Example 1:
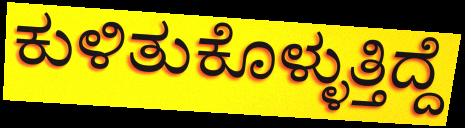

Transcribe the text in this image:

ಕುಳಿತುಕೊಳ್ಳುತ್ತಿದ್ದೆ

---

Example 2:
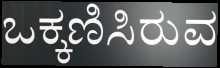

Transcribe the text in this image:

ಒಕ್ಕಣಿಸಿರುವ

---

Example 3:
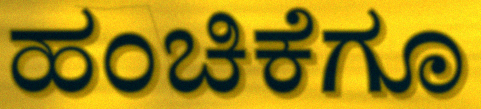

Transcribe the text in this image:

ಹಂಚಿಕೆಗೂ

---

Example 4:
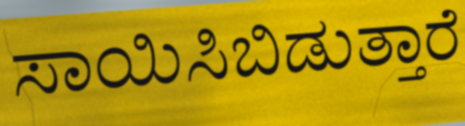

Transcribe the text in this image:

ಸಾಯಿಸಿಬಿಡುತ್ತಾರೆ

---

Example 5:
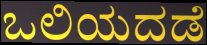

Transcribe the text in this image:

ಒಲಿಯದಡೆ